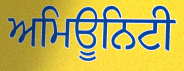
ਅਮਿਊਨਿਟੀ